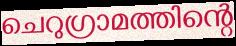
ചെറുഗ്രാമത്തിന്റെ